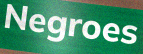
Negroes